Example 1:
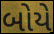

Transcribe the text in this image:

બોયે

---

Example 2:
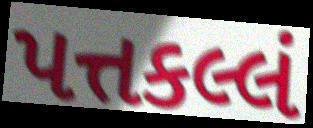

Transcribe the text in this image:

પત્તકલ્લં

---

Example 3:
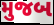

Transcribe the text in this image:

મુજબ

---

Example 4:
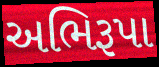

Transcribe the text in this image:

અભિરૂપા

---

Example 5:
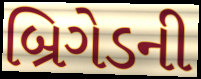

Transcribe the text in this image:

બ્રિગેડની